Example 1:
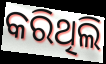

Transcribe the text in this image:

କରିଥିଲି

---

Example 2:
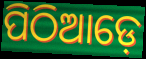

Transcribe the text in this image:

ପିଠିଆଡ଼େ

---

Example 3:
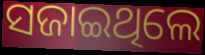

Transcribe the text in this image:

ସଜାଇଥିଲେ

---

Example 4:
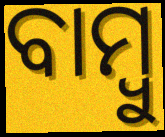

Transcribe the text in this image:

ବାମ୍ବୁ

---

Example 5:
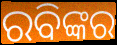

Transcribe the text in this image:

ରବିଙ୍କର